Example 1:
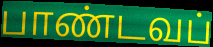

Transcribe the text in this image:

பாண்டவப்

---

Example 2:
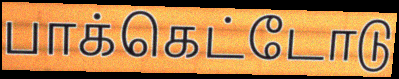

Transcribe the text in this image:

பாக்கெட்டோடு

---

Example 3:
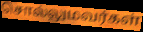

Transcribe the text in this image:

சொல்லுமவர்கள்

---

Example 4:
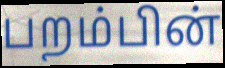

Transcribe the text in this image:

பறம்பின்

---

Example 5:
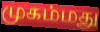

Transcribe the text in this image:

முகம்மது